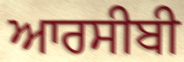
ਆਰਸੀਬੀ